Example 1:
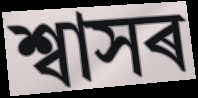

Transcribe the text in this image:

শ্বাসৰ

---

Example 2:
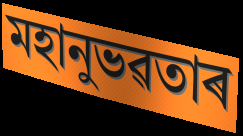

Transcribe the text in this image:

মহানুভৱতাৰ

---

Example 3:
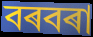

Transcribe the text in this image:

বৰবৰা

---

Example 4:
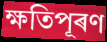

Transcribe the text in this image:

ক্ষতিপূৰণ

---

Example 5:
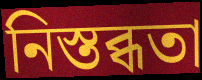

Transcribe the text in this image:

নিস্তব্ধতা